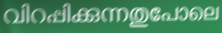
വിറപ്പിക്കുന്നതുപോലെ